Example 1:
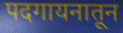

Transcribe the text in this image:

पदगायनातून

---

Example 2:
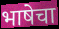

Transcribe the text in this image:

भाषेचा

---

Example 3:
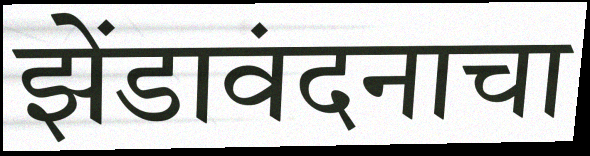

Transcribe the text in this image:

झेंडावंदनाचा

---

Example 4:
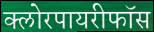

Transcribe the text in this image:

क्लोरपायरीफॉस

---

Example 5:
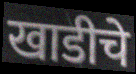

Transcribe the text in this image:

खाडीचे